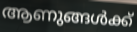
ആണുങ്ങൾക്ക്